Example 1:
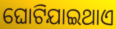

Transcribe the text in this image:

ଘୋଟିଯାଇଥାଏ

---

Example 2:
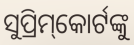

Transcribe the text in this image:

ସୁପ୍ରିମ୍‌କୋର୍ଟଙ୍କୁ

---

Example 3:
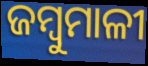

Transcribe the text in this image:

ଜମ୍ବୁମାଳୀ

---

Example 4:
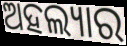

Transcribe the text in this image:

ଅହଲ୍ୟାର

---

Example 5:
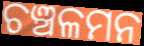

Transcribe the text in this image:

ଚଞ୍ଚଳମନ